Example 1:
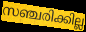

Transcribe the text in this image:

സഞ്ചരിക്കില്ല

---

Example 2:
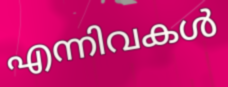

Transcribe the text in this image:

എന്നിവകൾ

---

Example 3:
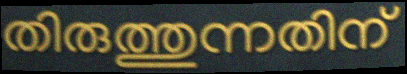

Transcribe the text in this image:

തിരുത്തുന്നതിന്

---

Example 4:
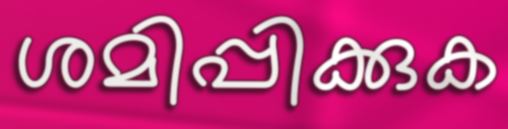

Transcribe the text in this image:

ശമിപ്പിക്കുക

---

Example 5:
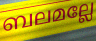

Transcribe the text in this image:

ബലമല്ലേ